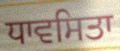
ਧਾਵਸਿਤਾ